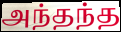
அந்தந்த